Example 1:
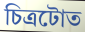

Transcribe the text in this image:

চিত্ৰটোত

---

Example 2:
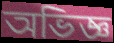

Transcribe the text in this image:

অভিজ্ঞ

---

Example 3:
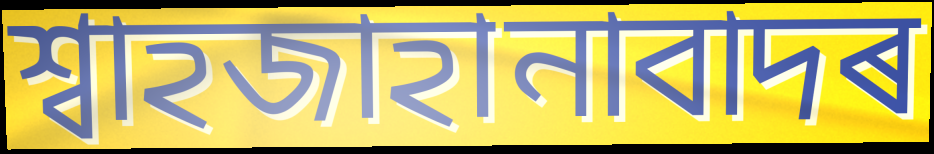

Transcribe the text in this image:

শ্বাহজাহানাবাদৰ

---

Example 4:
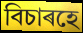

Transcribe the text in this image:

বিচাৰহে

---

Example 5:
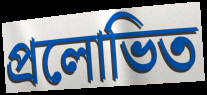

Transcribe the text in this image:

প্ৰলোভিত